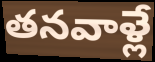
తనవాళ్లే